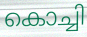
കൊച്ചി